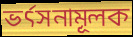
ভর্ৎসনামূলক